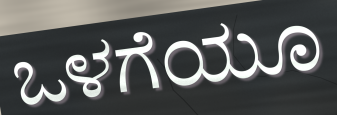
ಒಳಗೆಯೂ